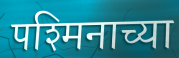
पश्मिनाच्या